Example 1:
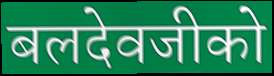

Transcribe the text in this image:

बलदेवजीको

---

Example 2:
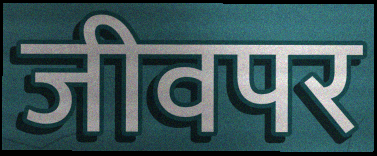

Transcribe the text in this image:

जीवपर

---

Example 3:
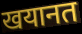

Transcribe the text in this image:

खयानत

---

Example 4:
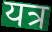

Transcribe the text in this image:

यत्र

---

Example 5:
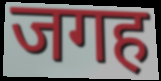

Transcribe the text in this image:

जगह